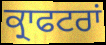
ਕ੍ਰਾਫਟਰਾਂ